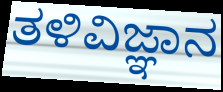
ತಳಿವಿಜ್ಞಾನ